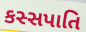
કસ્સપાતિ